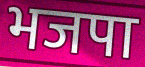
भजपा